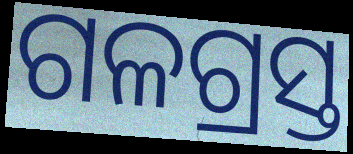
ଗଳଗ୍ରସ୍ତ